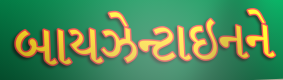
બાયઝેન્ટાઇનને